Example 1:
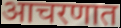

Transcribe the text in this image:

आचरणात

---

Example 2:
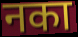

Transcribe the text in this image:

नका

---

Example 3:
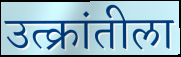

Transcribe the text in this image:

उत्क्रांतीला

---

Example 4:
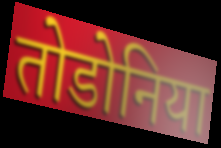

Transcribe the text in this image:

तोडोनिया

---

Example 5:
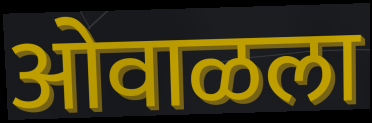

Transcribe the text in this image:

ओवाळला